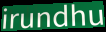
irundhu